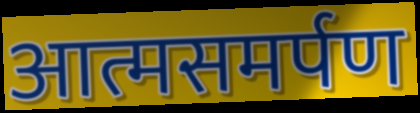
आत्मसमर्पण